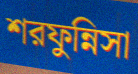
শরফুন্নিসা